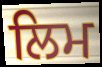
ਲਿਮ